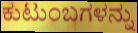
ಕುಟುಂಬಗಳನ್ನು